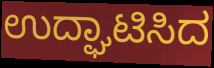
ಉದ್ಘಾಟಿಸಿದ